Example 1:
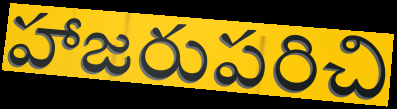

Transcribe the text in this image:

హాజరుపరిచి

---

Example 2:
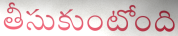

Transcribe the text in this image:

తీసుకుంటోంది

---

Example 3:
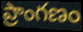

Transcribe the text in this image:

ప్రాంగణం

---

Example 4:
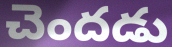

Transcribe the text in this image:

చెందడు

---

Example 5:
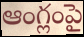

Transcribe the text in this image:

ఆంగ్లంపై